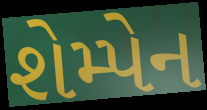
શેમ્પેન